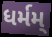
ધર્મમ્